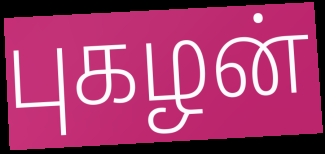
புகழன்